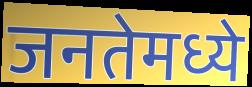
जनतेमध्ये